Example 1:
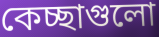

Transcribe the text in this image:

কেচ্ছাগুলো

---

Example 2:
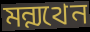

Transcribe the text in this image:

মন্মথেন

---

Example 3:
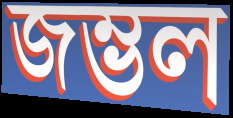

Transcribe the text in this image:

জম্ভল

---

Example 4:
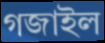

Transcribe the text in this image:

গজাইল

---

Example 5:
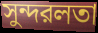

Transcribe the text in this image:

সুন্দরলতা